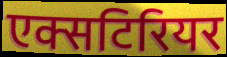
एक्सटिरियर